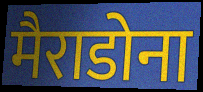
मैराडोना